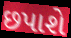
છપાશે